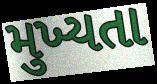
મુખ્યતા